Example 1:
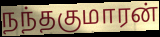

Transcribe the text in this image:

நந்தகுமாரன்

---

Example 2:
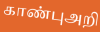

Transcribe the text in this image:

காண்புஅறி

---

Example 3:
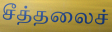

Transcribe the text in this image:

சீத்தலைச்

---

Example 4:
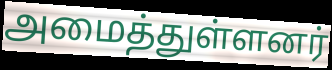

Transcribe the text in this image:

அமைத்துள்ளனர்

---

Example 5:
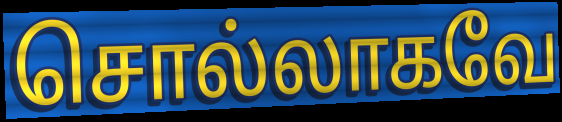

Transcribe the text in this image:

சொல்லாகவே